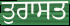
ਤੁਰਾਸਤ